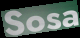
Sosa